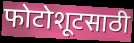
फोटोशूटसाठी